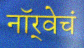
नॉर्वेचं